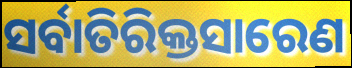
ସର୍ବାତିରିକ୍ତସାରେଣ